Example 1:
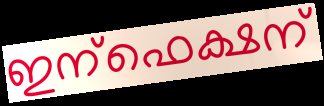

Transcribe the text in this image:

ഇന്ഫെക്ഷന്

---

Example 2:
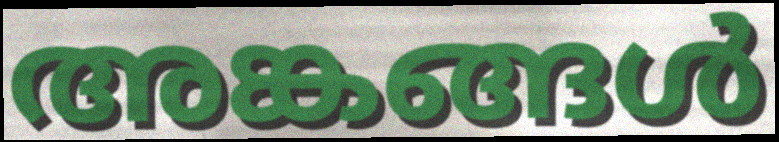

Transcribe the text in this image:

അങ്കങ്ങൾ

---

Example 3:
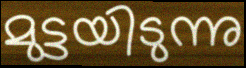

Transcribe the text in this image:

മുട്ടയിടുന്നു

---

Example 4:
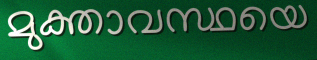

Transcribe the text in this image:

മുക്താവസ്ഥയെ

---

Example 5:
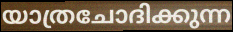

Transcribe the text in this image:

യാത്രചോദിക്കുന്ന